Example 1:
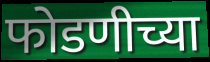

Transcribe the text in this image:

फोडणीच्या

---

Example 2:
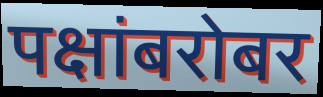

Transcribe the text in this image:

पक्षांबरोबर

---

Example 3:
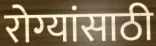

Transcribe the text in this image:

रोग्यांसाठी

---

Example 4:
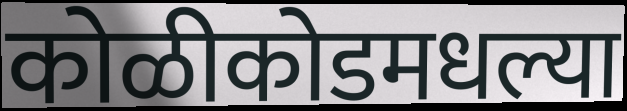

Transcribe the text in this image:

कोळीकोडमधल्या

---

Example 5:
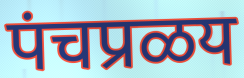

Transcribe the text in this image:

पंचप्रळय